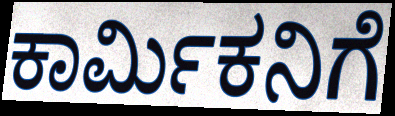
ಕಾರ್ಮಿಕನಿಗೆ